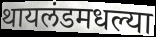
थायलंडमधल्या